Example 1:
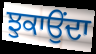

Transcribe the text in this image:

ਝੁਕਾਉਂਦਾ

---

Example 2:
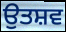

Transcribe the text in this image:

ਉਤਸ਼ਵ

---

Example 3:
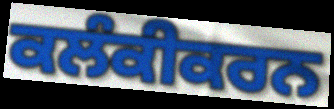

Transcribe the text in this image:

ਕਲੰਕੀਕਰਨ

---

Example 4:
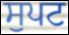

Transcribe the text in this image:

ਸੁਪਟ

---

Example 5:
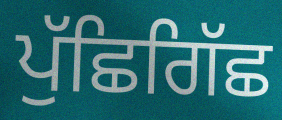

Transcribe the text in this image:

ਪੁੱਛਿਗਿੱਛ